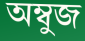
অম্বুজ